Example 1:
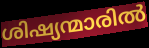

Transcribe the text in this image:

ശിഷ്യന്മാരിൽ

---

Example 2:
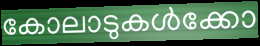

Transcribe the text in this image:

കോലാടുകൾക്കോ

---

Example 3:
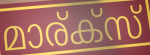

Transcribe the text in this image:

മാര്ക്സ്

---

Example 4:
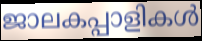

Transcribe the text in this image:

ജാലകപ്പാളികൾ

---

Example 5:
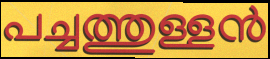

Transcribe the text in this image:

പച്ചത്തുള്ളൻ